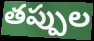
తప్పుల